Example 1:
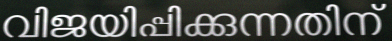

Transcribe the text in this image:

വിജയിപ്പിക്കുന്നതിന്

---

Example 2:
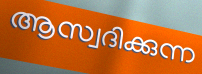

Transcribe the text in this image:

ആസ്വദിക്കുന്ന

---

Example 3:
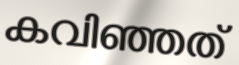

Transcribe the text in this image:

കവിഞ്ഞത്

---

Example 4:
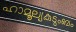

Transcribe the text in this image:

ഹാമൂല്യകുടുംബം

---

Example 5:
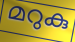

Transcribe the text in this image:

മറുകു